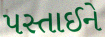
પસ્તાઈને